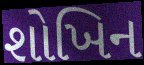
શોખિન